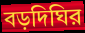
বড়দিঘির